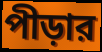
পীড়ার